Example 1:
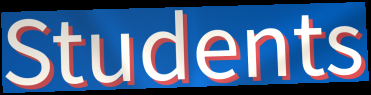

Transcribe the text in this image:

Students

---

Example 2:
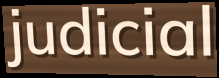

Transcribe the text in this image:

judicial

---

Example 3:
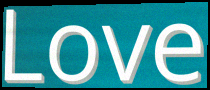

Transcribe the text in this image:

Love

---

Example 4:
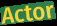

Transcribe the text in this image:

Actor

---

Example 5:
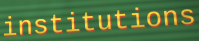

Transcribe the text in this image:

institutions